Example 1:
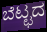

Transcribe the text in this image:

ಬೆಟ್ಟದ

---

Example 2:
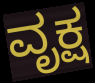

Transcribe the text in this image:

ವೃಕ್ಷ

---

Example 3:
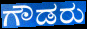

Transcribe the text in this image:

ಗೌಡರು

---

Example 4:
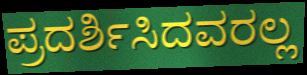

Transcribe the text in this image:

ಪ್ರದರ್ಶಿಸಿದವರಲ್ಲ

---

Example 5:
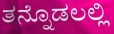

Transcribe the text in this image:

ತನ್ನೊಡಲಲ್ಲಿ